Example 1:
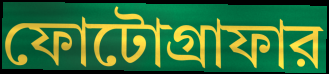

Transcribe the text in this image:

ফোটোগ্রাফার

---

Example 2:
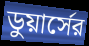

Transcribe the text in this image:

ডুয়ার্সের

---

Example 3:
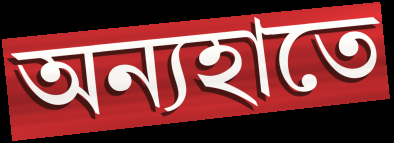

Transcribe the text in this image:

অন্যহাতে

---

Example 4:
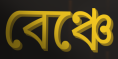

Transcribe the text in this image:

বেঞ্চে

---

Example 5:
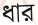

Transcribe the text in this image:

ধার